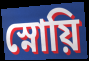
স্নোয়ি